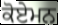
ਕੋਏਮਨ